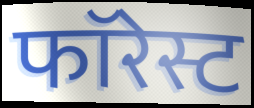
फॉरेस्‍ट